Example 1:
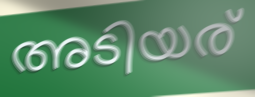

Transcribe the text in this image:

അടിയര്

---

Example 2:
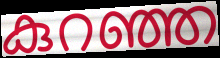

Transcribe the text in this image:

കുറഞ്ഞ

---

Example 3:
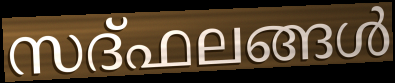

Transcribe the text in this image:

സദ്ഫലങ്ങൾ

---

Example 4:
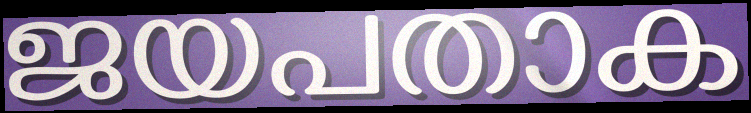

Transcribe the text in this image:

ജയപതാക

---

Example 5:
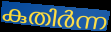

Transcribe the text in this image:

കുതിർന്ന